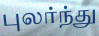
புலர்ந்து